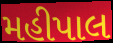
મહીપાલ